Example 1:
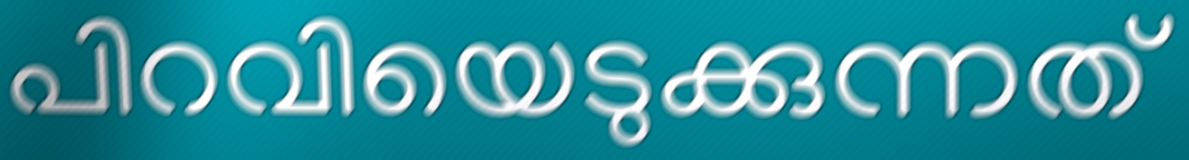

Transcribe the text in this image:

പിറവിയെടുക്കുന്നത്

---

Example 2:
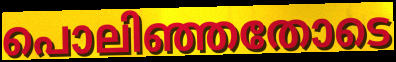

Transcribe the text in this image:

പൊലിഞ്ഞതോടെ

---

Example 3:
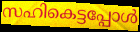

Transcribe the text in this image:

സഹികെട്ടപ്പോൾ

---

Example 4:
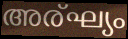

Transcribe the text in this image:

അര്ഘ്യം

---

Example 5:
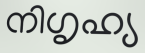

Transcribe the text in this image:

നിഗൃഹ്യ